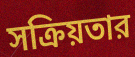
সক্রিয়তার